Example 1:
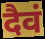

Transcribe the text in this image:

दैवं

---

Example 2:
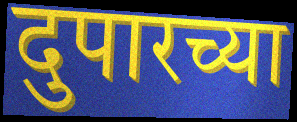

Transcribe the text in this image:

दुपारच्या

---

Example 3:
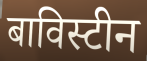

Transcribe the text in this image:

बाविस्टीन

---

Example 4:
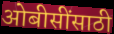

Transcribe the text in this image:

ओबीसींसाठी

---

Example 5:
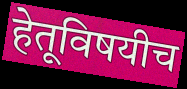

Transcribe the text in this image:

हेतूविषयीच